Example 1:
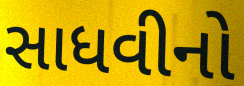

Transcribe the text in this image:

સાધવીનો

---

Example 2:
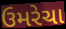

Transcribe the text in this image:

ઉમરેચા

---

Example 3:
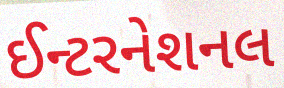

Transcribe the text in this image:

ઈન્ટરનેશનલ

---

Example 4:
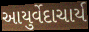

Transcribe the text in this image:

આયુર્વેદાચાર્ય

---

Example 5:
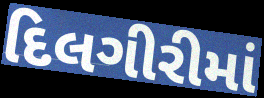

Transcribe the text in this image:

દિલગીરીમાં